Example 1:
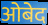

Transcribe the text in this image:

ओबेद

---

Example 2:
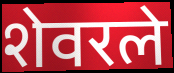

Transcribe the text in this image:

शेवरले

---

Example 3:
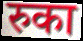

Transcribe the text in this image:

रुका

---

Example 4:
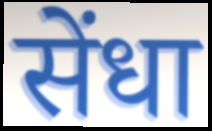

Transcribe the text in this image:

सेंधा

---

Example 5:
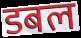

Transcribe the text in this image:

डबल